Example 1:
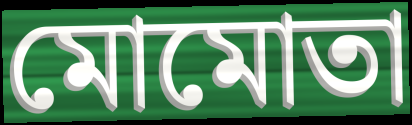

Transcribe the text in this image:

মোমোতা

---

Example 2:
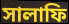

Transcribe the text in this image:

সালাফি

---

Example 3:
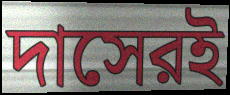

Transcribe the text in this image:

দাসেরই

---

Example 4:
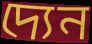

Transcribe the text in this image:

দ্যেন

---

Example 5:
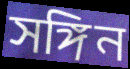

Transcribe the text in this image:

সঙ্গিন